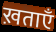
ख़ताएँ